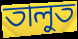
তালুত